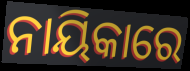
ନାୟିକାରେ